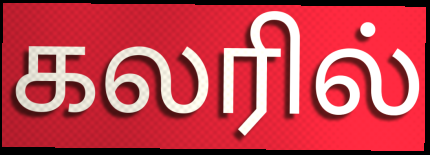
கலரில்